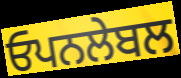
ਓਪਨਲੇਬਲ